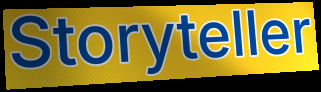
Storyteller